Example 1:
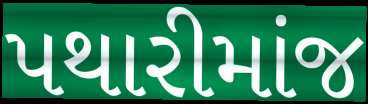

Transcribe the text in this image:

પથારીમાંજ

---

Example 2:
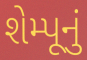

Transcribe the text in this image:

શેમ્પૂનું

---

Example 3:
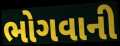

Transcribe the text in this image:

ભોગવાની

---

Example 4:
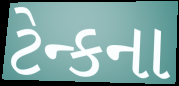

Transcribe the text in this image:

ટેન્કના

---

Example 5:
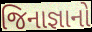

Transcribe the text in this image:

જિનાજ્ઞાનો